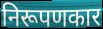
निरूपणकार